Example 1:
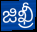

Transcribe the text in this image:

జిఖ్రీ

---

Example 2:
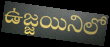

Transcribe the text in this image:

ఉజ్జయినిలో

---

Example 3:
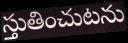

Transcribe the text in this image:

స్తుతించుటను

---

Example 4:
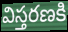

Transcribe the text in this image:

విస్తరణకి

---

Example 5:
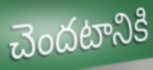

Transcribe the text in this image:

చెందటానికి